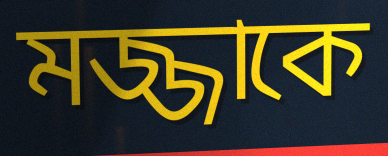
মজ্জাকে